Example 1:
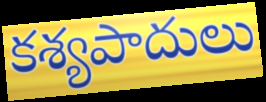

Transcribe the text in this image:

కశ్యపాదులు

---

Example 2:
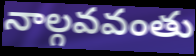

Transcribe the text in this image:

నాల్గవవంతు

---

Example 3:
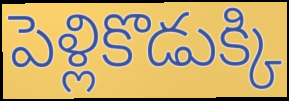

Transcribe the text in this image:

పెళ్లికొడుక్కి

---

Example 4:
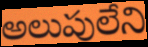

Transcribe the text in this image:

అలుపులేని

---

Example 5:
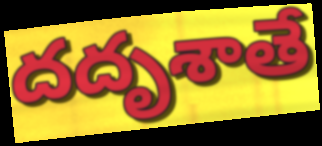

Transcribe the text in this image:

దదృశాతే